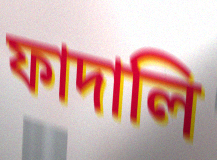
ফাদালি